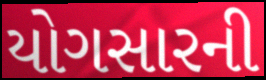
યોગસારની